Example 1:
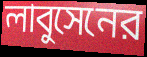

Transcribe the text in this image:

লাবুসেনের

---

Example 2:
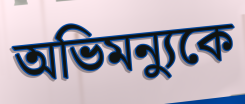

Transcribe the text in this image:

অভিমন্যুকে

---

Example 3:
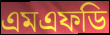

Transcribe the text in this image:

এমএফডি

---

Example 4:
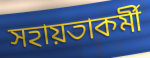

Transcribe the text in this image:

সহায়তাকর্মী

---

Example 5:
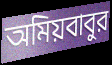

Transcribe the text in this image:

অমিয়বাবুর